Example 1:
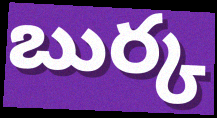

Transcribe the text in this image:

బుర్క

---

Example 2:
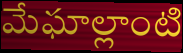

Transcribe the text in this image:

మేఘాల్లాంటి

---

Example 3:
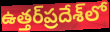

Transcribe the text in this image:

ఉత్తర్‌ప్రదేశ్‌లో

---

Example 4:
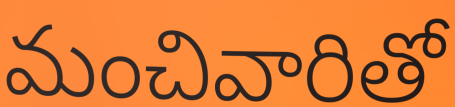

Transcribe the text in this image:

మంచివారితో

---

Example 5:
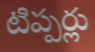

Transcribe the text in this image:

టిప్పర్లు